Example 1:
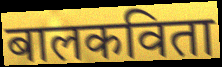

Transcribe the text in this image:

बालकविता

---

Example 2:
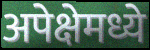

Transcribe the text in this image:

अपेक्षेमध्ये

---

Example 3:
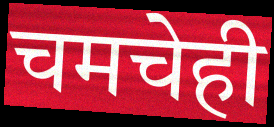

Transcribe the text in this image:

चमचेही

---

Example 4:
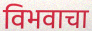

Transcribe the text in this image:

विभवाचा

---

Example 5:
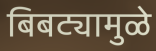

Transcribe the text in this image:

बिबट्यामुळे